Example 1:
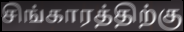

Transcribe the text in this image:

சிங்காரத்திற்கு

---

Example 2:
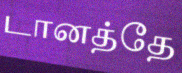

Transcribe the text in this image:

டானத்தே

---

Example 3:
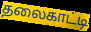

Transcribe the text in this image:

தலைகாட்டி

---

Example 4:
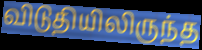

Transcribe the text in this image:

விடுதியிலிருந்த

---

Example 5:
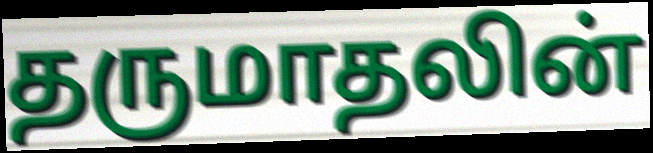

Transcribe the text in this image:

தருமாதலின்